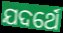
ଯଦର୍ଥେ